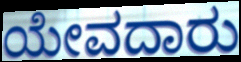
ಯೇವದಾರು